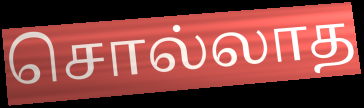
சொல்லாத